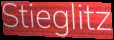
Stieglitz